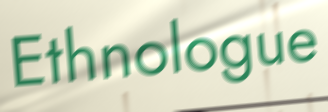
Ethnologue